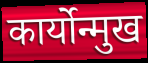
कार्योन्मुख